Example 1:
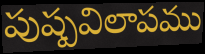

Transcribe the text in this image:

పుష్పవిలాపము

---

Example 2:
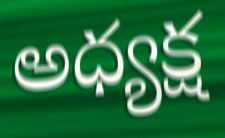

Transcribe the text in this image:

అధ్యక్ష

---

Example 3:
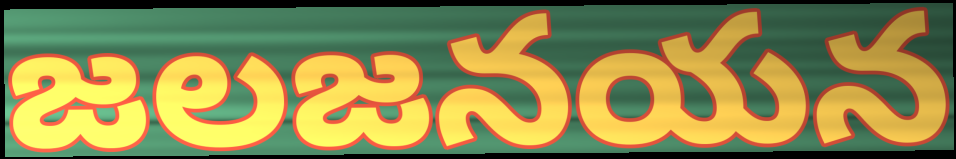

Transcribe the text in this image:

జలజనయన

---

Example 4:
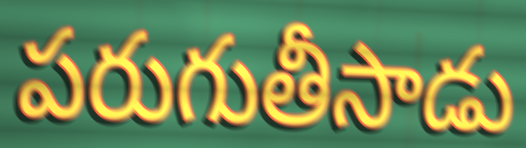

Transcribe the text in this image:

పరుగుతీసాడు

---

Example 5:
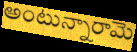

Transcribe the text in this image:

అంటున్నారామె